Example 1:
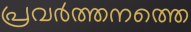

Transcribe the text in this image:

പ്രവർത്തനത്തെ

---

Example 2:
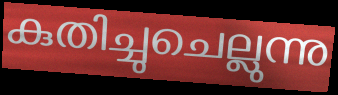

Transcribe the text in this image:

കുതിച്ചുചെല്ലുന്നു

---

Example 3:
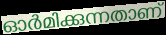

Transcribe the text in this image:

ഓർമിക്കുന്നതാണ്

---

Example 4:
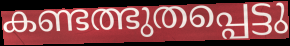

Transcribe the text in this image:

കണ്ടത്ഭുതപ്പെട്ടു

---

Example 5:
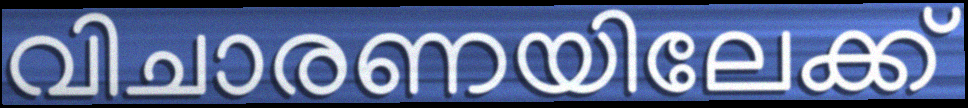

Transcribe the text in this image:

വിചാരണയിലേക്ക്